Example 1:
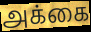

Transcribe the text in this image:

அக்கை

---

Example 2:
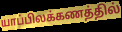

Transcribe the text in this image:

யாப்பிலக்கணத்தில்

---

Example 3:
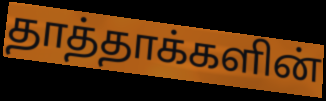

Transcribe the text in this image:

தாத்தாக்களின்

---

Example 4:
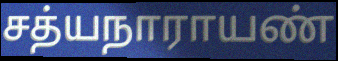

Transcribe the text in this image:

சத்யநாராயண்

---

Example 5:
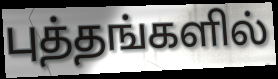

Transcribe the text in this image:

புத்தங்களில்